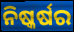
ନିଷ୍କର୍ଷର